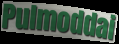
Pulmoddai